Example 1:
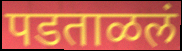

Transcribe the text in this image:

पडताळलं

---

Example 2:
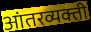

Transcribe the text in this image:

आंतरव्यक्ती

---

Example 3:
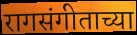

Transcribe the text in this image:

रागसंगीताच्या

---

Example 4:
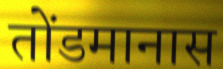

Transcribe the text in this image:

तोंडमानास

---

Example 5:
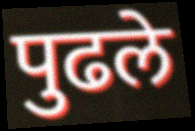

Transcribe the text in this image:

पुढले